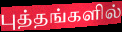
புத்தங்களில்